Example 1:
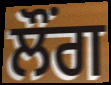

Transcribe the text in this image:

ਲੌਂਗ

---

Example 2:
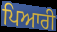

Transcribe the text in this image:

ਪਿਆਰੀ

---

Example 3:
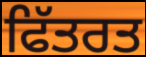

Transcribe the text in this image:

ਫਿੱਤਰਤ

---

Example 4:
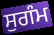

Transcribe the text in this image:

ਸੁਗੰਮ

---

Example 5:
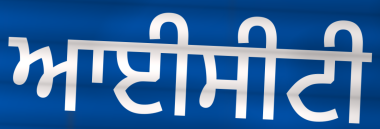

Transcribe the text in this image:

ਆਈਸੀਟੀ